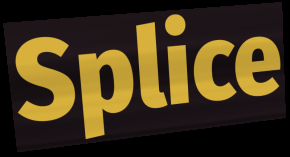
Splice